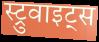
स्ट्रुवाइट्स